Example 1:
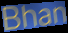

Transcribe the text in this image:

Bhan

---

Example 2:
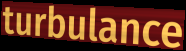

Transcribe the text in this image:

turbulance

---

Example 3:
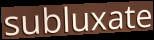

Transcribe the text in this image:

subluxate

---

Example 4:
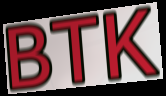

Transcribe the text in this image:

BTK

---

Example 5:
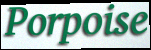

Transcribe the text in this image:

Porpoise